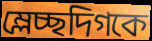
ম্লেচ্ছদিগকে